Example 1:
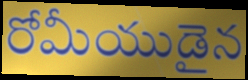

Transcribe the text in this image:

రోమీయుడైన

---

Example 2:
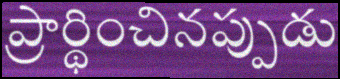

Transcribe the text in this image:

ప్రార్థించినప్పుడు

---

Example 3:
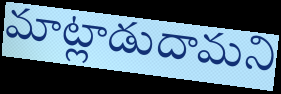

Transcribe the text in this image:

మాట్లాడుదామని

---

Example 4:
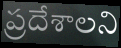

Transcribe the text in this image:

ప్రదేశాలని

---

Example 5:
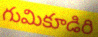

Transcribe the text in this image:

గుమికూడిరి